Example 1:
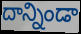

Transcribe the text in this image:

దాన్నిండా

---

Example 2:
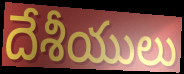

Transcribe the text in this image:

దేశీయులు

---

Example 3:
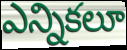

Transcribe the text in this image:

ఎన్నికలూ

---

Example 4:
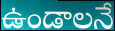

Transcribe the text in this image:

ఉండాలనే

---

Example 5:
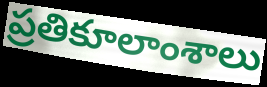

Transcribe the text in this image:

ప్రతికూలాంశాలు